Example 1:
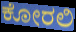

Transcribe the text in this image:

ಕೋರಲಿ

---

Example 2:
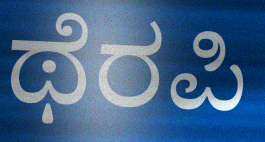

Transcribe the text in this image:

ಥೆರಪಿ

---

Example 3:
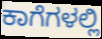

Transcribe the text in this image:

ಕಾಗೆಗಳಲ್ಲಿ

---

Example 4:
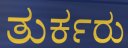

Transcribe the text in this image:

ತುರ್ಕರು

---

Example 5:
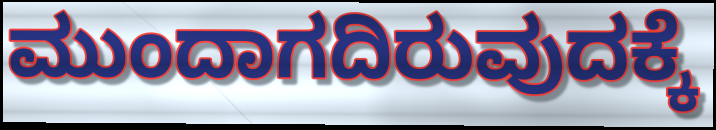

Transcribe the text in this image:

ಮುಂದಾಗದಿರುವುದಕ್ಕೆ